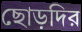
ছোড়দির